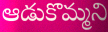
ఆడుకొమ్మని